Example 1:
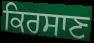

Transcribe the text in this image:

ਕਿਰਸਾਣ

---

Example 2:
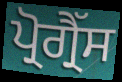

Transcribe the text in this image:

ਪ੍ਰੋਗ੍ਰੈੱਸ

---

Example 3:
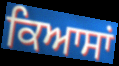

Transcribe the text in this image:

ਕਿਆਸਾਂ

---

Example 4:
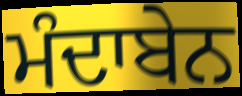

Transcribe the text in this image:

ਮੰਦਾਬੇਨ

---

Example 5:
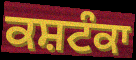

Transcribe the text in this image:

ਕਸ਼ਟੰਕਾ